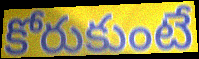
కోరుకుంటే